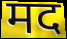
मद